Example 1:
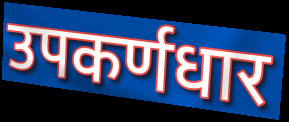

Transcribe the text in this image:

उपकर्णधार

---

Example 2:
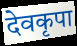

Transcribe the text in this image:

देवकृपा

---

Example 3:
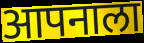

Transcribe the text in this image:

आपनाला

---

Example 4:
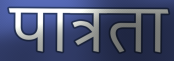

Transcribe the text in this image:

पात्रता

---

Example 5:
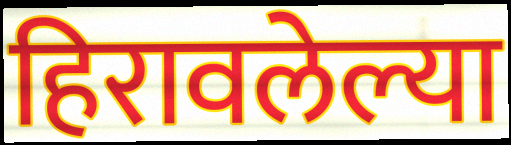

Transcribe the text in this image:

हिरावलेल्या